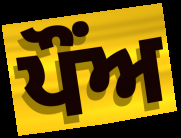
ਪੌਂਅ